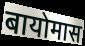
बायोमास